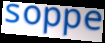
soppe